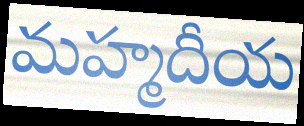
మహ్మదీయ